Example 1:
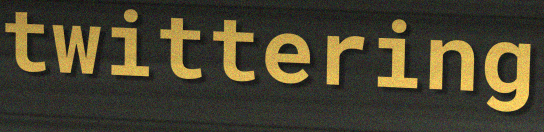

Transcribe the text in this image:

twittering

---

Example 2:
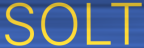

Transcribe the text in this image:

SOLT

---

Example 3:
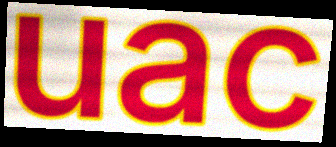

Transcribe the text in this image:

uac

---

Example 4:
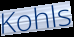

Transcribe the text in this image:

Kohls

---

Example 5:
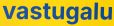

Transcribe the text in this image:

vastugalu